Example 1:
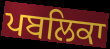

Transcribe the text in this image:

ਪਬਲਿਕਾ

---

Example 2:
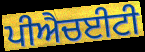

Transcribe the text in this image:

ਪੀਐਚਈਟੀ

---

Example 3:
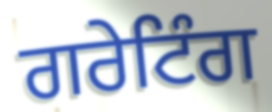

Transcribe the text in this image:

ਗਰੇਟਿੰਗ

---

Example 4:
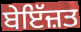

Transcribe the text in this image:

ਬੇਇੱਜ਼ਤ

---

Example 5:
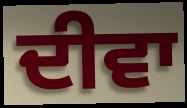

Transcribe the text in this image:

ਦੀਵਾ